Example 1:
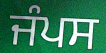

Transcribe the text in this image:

ਜੰਪਸ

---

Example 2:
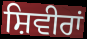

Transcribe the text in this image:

ਸ਼ਿਵੀਰਾਂ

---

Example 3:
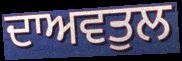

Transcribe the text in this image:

ਦਾਅਵਤੁਲ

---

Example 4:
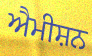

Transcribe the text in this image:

ਐਮੀਸ਼ਨ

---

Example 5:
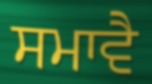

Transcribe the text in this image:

ਸਮਾਵੈ